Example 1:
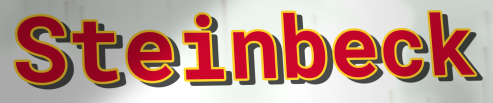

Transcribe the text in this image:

Steinbeck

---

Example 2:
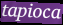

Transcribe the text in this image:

tapioca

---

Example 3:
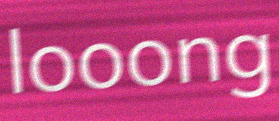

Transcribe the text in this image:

looong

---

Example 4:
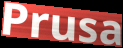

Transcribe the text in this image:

Prusa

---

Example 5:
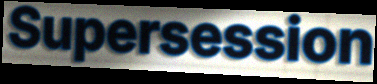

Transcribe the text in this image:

Supersession